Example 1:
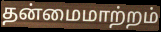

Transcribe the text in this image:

தன்மைமாற்றம்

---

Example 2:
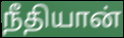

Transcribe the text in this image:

நீதியான்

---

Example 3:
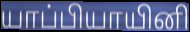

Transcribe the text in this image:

யாப்பியாயினி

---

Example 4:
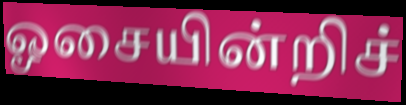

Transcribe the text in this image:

ஓசையின்றிச்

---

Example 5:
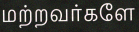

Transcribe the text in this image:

மற்றவர்களே